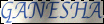
GANESHA